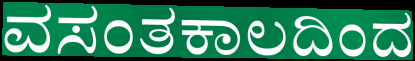
ವಸಂತಕಾಲದಿಂದ